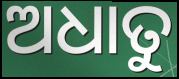
ଅଧାତୁ